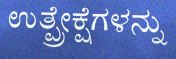
ಉತ್ಪ್ರೇಕ್ಷೆಗಳನ್ನು